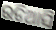
ଉଡିଆସି